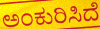
ಅಂಕುರಿಸಿದೆ